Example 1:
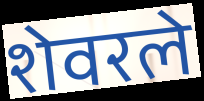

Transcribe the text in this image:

शेवरले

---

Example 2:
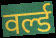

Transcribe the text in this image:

वर्ल्‍ड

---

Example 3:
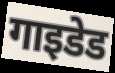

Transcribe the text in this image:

गाइडेड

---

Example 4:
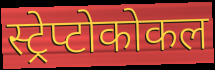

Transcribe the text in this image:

स्ट्रेप्टोकोकल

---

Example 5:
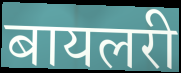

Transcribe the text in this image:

बायलरी